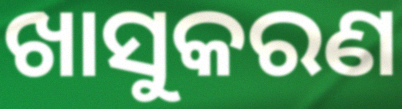
ଖାସୁକରଣ